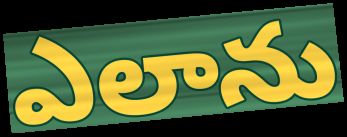
ఎలాను